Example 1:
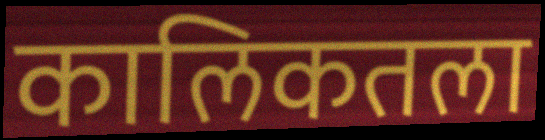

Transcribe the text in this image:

कालिकतला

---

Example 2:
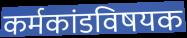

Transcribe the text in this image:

कर्मकांडविषयक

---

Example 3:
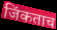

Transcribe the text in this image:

जिंकताच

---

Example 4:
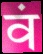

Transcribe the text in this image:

वं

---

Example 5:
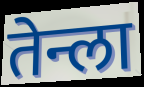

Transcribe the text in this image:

तेन्ला